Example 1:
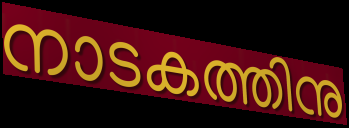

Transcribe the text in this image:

നാടകത്തിനു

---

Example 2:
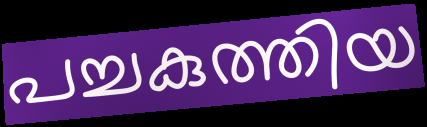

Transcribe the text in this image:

പച്ചകുത്തിയ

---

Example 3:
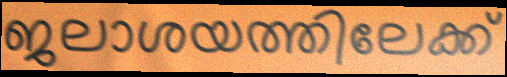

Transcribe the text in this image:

ജലാശയത്തിലേക്ക്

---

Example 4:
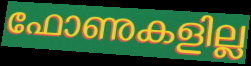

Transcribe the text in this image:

ഫോണുകളില്ല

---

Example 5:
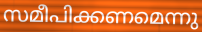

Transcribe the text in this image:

സമീപിക്കണമെന്നു